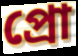
প্রো